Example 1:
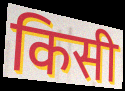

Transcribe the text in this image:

किसी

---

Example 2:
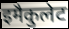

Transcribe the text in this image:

इमैकुलेट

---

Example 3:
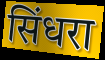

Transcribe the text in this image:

सिंधरा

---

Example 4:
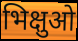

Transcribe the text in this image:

भिक्षुओ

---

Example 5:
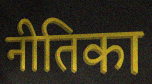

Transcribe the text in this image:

नीतिका